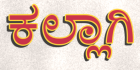
ಕಲ್ಲಾಗಿ